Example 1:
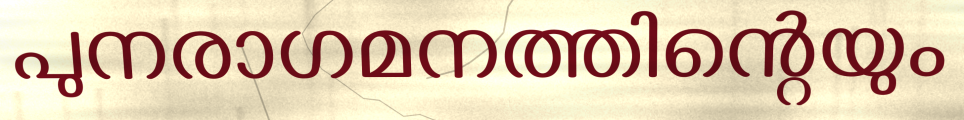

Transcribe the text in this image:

പുനരാഗമനത്തിന്റെയും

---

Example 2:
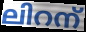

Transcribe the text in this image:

ലിറന്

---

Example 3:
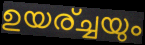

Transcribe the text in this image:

ഉയര്ച്ചയും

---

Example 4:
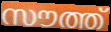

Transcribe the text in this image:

സൗത്ത്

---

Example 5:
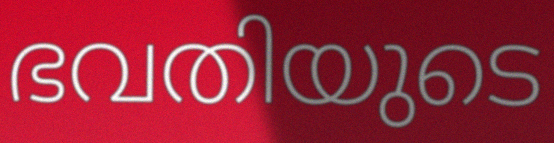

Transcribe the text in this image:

ഭവതിയുടെ